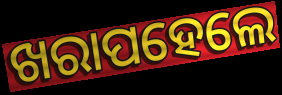
ଖରାପହେଲେ